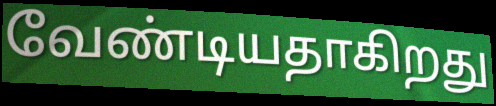
வேண்டியதாகிறது